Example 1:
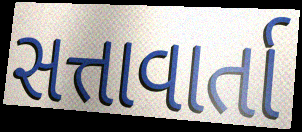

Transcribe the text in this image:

સત્તાવાર્તા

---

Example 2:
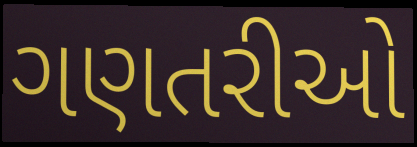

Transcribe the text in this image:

ગણતરીઓ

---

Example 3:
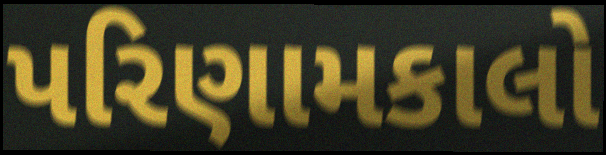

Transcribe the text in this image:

પરિણામકાલો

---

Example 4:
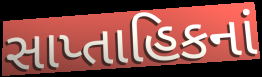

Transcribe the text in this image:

સાપ્તાહિકનાં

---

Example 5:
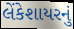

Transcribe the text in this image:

લેંકેશાયરનું